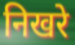
निखरे